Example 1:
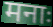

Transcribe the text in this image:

मनाः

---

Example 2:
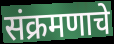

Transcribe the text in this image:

संक्रमणाचे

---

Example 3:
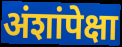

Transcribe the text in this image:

अंशांपेक्षा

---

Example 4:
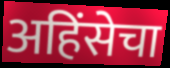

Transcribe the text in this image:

अहिंसेचा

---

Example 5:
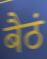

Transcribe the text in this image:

बैठं